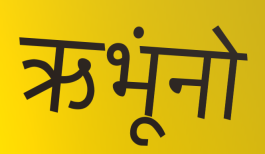
ऋभूंनो